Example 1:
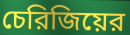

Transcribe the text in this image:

চেরিজিয়ের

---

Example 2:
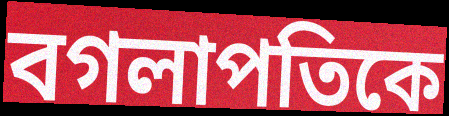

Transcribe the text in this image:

বগলাপতিকে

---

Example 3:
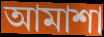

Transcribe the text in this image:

আমাশা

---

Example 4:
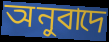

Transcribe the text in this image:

অনুবাদে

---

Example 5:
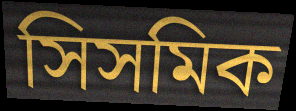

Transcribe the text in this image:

সিসমিক